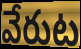
వేరుట